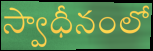
స్వాధీనంలో